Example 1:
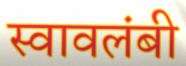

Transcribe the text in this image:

स्वावलंबी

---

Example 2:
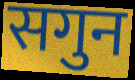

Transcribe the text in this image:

सगुन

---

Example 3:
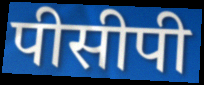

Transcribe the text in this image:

पीसीपी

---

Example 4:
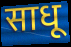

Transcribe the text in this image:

साधू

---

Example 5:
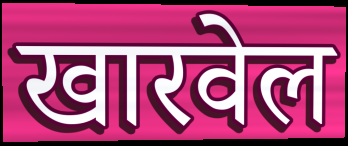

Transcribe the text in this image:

खारवेल